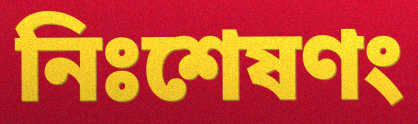
নিঃশেষণং